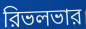
রিভলভার